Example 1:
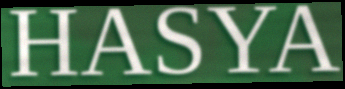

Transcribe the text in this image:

HASYA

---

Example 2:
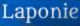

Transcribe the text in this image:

Laponie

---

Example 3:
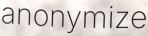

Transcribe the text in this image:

anonymize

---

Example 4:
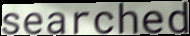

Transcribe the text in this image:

searched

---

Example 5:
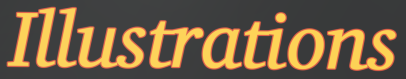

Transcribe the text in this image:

Illustrations